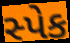
સ્પેક